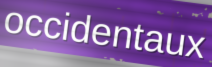
occidentaux